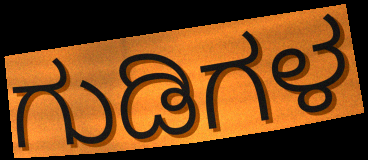
ಗುಡಿಗಳ